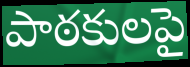
పాఠకులపై